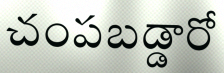
చంపబడ్డారో